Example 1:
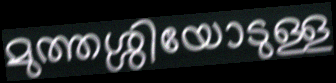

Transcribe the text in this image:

മുത്തശ്ശിയോടുള്ള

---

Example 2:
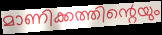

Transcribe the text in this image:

മാണിക്കത്തിന്റെയും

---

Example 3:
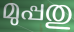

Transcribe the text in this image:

മുപ്പതു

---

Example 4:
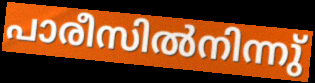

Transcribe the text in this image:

പാരീസിൽനിന്നു്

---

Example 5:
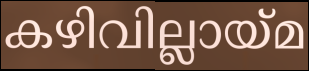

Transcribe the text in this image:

കഴിവില്ലായ്മ